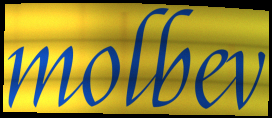
molbev